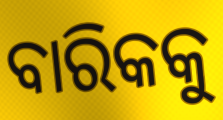
ବାରିକକୁ